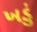
ખડું